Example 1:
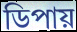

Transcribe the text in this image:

ডিপায়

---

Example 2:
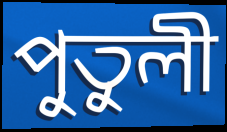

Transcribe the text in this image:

পুতুলী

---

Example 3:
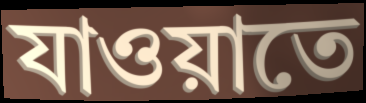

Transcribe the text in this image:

যাওয়াতে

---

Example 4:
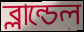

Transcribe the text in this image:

ব্লান্ডেল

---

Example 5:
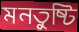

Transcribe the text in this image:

মনতুষ্টি